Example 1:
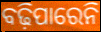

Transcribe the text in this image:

ବଢ଼ିପାରେନି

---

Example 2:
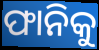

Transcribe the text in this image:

ଫାନିକୁ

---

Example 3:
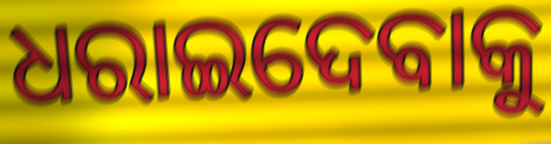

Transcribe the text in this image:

ଧରାଇଦେବାକୁ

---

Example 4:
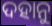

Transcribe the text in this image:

ଦହାନୁ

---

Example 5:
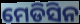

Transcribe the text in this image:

ମେଡିସିନ